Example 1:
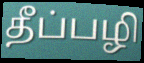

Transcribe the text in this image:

தீப்பழி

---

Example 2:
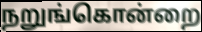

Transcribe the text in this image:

நறுங்கொன்றை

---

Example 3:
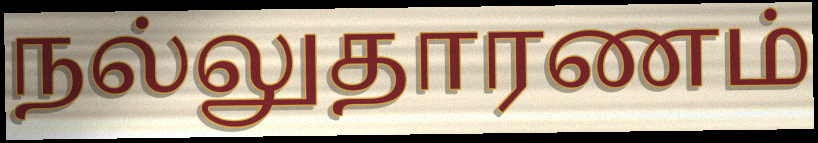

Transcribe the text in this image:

நல்லுதாரணம்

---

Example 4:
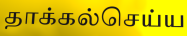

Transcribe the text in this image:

தாக்கல்செய்ய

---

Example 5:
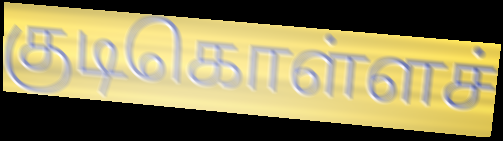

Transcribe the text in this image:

குடிகொள்ளச்